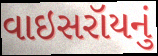
વાઇસરૉયનું